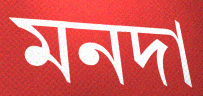
মনদা